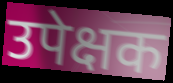
उपेक्षक